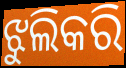
ଝୁଲିକରି